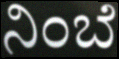
ನಿಂಬೆ